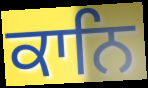
ਕਾਨਿ